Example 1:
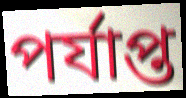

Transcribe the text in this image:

পৰ্যাপ্ত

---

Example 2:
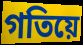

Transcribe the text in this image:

গতিয়ে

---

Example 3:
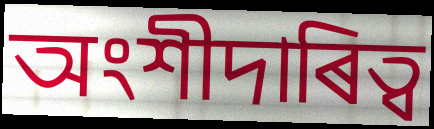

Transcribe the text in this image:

অংশীদাৰিত্ব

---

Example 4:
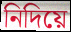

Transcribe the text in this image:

নিদিয়ে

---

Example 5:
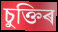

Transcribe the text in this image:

চুক্তিৰ